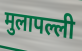
मुलापल्ली